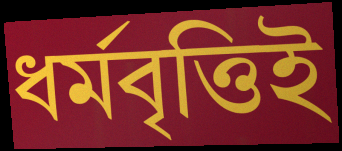
ধর্মবৃত্তিই